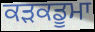
ਕੜਕਡੂਮਾ